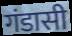
गंडासी